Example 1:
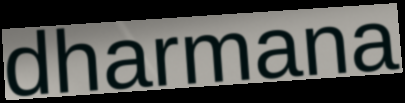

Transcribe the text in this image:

dharmana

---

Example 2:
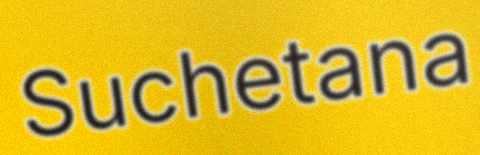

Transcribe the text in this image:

Suchetana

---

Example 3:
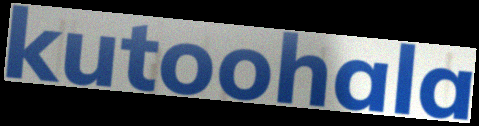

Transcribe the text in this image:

kutoohala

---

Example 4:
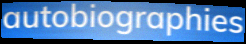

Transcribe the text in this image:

autobiographies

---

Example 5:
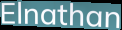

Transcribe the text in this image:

Elnathan